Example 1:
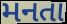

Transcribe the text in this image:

મનતા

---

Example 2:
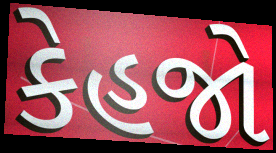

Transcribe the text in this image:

કેહજો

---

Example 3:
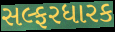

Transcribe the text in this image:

સલ્ફરધારક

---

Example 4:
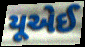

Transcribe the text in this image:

યૂએઈ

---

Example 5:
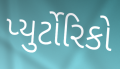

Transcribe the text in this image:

પ્યુર્ટોરિકો